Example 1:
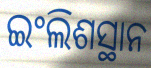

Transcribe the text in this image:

ଇଂଲିଶସ୍ଥାନ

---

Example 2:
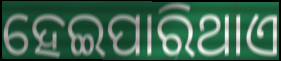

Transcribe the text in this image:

ହେଇପାରିଥାଏ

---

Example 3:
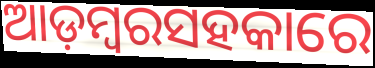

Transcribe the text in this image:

ଆଡ଼ମ୍ବରସହକାରେ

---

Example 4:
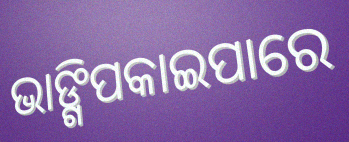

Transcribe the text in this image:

ଭାଙ୍ଗିପକାଇପାରେ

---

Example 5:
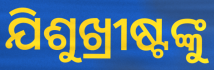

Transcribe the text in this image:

ଯିଶୁଖ୍ରୀଷ୍ଟଙ୍କୁ